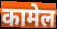
कामेल